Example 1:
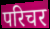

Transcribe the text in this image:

परिचर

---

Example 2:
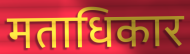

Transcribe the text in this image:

मताधिकार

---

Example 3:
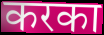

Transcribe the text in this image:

करका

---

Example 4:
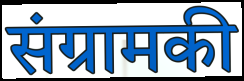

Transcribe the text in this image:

संग्रामकी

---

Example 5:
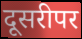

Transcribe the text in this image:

दूसरीपर